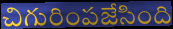
చిగురింపజేసింది